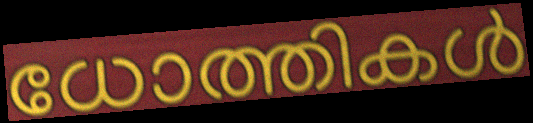
ധോത്തികൾ